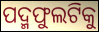
ପଦ୍ମଫୁଲଟିକୁ